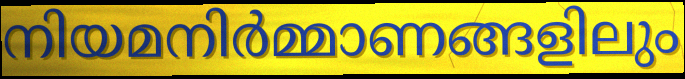
നിയമനിർമ്മാണങ്ങളിലും